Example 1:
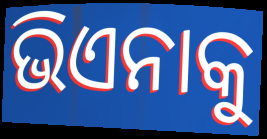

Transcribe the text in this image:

ଭିଏନାକୁ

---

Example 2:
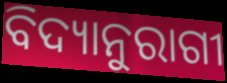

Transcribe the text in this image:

ବିଦ୍ୟାନୁରାଗୀ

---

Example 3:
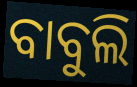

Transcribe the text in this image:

ବାବୁଲି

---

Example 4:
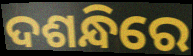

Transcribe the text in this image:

ଦଶନ୍ଧିରେ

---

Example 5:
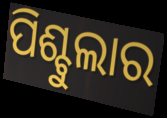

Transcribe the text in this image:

ପିଶ୍ଚୁଲାର